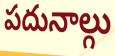
పదునాల్గు